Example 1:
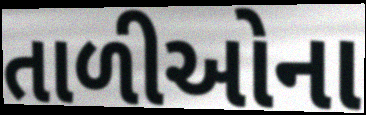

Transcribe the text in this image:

તાળીઓના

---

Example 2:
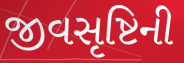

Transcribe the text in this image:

જીવસૃષ્ટિની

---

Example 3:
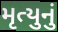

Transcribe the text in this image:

મૃત્યુનું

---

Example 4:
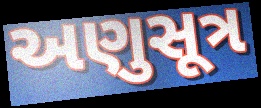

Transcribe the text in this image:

અણુસૂત્ર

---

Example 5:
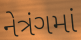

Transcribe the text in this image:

નેત્રંગમાં